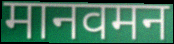
मानवमन